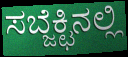
ಸಬ್ಜೆಕ್ಟಿನಲ್ಲಿ